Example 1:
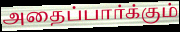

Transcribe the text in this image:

அதைப்பார்க்கும்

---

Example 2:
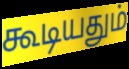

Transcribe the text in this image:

கூடியதும்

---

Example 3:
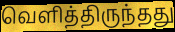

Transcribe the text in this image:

வெளித்திருந்தது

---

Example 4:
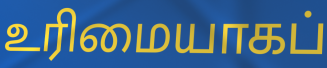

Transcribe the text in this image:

உரிமையாகப்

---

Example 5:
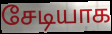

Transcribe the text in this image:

சேடியாக